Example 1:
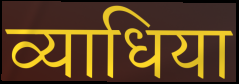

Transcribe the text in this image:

व्याधिया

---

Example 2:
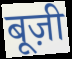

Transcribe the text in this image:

बूज़ी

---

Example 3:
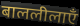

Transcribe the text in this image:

बाललीलाएँ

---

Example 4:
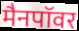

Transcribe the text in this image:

मैनपॉवर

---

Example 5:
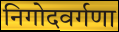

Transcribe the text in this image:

निगोदवर्गणा